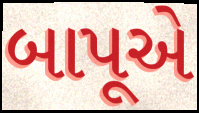
બાપૂએ